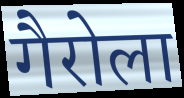
गैरोला